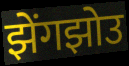
झेंगझोउ